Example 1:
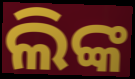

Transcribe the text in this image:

ଲିଙ୍କ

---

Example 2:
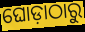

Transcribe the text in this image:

ଘୋଡ଼ାଠାରୁ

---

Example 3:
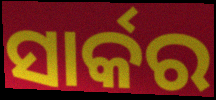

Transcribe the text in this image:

ସାର୍କର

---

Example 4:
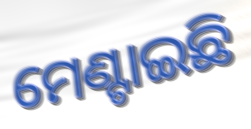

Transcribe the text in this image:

ମେଣ୍ଟାଇଛି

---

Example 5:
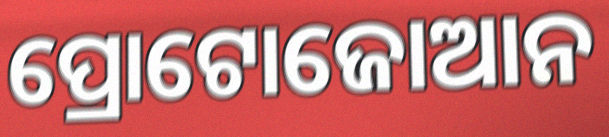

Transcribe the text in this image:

ପ୍ରୋଟୋଜୋଆନ